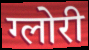
ग्लोरी